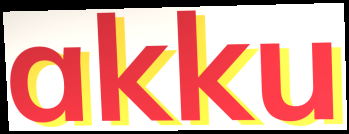
akku